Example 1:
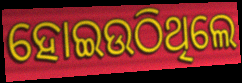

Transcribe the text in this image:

ହୋଇଉଠିଥିଲେ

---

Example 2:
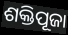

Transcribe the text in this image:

ଶକ୍ତିପୂଜା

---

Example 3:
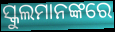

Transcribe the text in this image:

ସ୍କୁଲମାନଙ୍କରେ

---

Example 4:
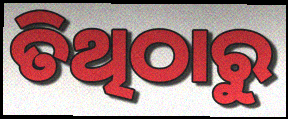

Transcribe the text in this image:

ତିଥିଠାରୁ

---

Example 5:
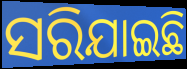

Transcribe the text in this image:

ସରିଯାଇଛି